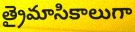
త్రైమాసికాలుగా